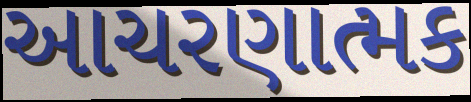
આચરણાત્મક